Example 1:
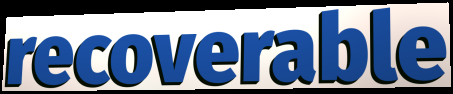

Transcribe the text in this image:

recoverable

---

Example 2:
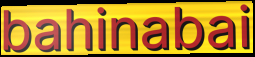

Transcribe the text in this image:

bahinabai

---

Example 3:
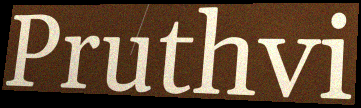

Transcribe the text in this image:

Pruthvi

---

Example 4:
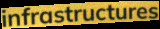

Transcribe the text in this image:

infrastructures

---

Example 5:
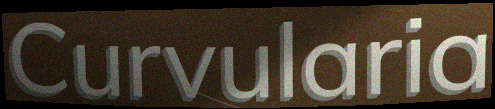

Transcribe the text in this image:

Curvularia